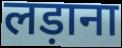
लड़ाना